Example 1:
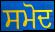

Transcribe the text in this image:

ਸਮੋਦ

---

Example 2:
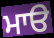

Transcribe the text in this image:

ਮਾੳ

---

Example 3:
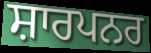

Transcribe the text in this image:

ਸ਼ਾਰਪਨਰ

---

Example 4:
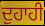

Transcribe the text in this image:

ਦੁਹਾਹੀ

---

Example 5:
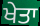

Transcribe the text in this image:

ਖੇਤਾ